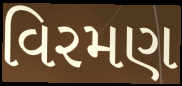
વિરમણ